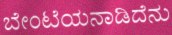
ಬೇಂಟೆಯನಾಡಿದೆನು